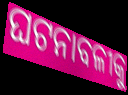
ଘଟନାବଳୀକୁ